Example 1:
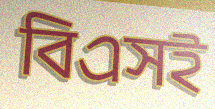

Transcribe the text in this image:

বিএসই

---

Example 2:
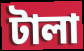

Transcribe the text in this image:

টালা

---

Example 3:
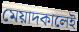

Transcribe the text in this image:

মেয়াদকালেই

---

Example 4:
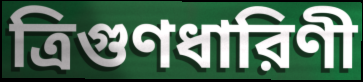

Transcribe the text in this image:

ত্রিগুণধারিণী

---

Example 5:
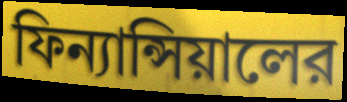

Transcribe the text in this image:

ফিন্যান্সিয়ালের